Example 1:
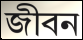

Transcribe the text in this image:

জীবন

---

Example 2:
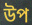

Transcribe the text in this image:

উপ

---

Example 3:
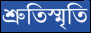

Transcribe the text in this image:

শ্রুতিস্মৃতি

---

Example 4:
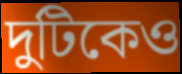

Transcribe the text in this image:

দুটিকেও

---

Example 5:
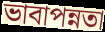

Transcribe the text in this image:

ভাবাপন্নতা